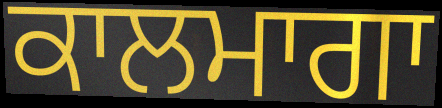
ਕਾਲਮਾਗਾ